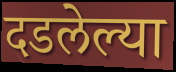
दडलेल्या